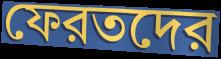
ফেরতদের